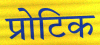
प्रोटिक